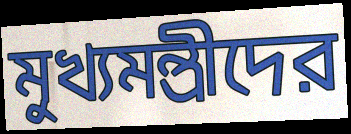
মুখ্যমন্ত্রীদের